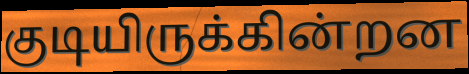
குடியிருக்கின்றன